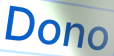
Dono